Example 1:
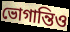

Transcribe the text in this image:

ভোগান্তিও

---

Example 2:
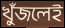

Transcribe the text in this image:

খুঁজলেই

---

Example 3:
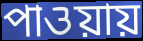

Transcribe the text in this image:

পাওয়ায়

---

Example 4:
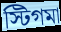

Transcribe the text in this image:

স্টিগমা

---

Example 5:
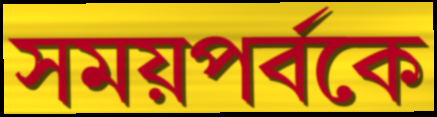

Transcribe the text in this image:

সময়পর্বকে